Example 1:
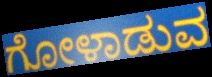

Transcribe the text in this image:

ಗೋಳಾಡುವ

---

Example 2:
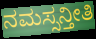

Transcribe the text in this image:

ನಮಸ್ಸನ್ತೀತಿ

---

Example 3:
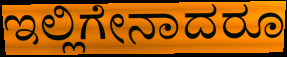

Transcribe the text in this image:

ಇಲ್ಲಿಗೇನಾದರೂ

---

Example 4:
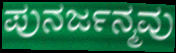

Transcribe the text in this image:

ಪುನರ್ಜನ್ಮವು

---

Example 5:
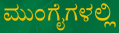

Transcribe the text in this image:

ಮುಂಗೈಗಳಲ್ಲಿ